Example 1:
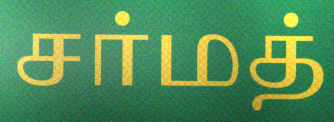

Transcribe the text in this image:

சர்மத்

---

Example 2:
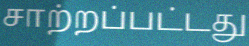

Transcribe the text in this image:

சாற்றப்பட்டது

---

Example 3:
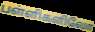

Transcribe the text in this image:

பள்ளிகளிலோ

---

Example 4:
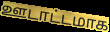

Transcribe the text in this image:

ஊடாட்டமாக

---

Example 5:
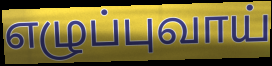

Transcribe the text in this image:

எழுப்புவாய்